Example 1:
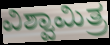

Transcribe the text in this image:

ವಿಶ್ವಾಮಿತ್ರ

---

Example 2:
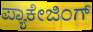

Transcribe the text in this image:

ಪ್ಯಾಕೇಜಿಂಗ್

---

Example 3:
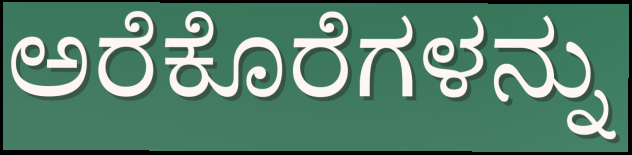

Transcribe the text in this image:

ಅರೆಕೊರೆಗಳನ್ನು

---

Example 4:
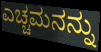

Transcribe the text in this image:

ಎಚ್ಚಮನನ್ನು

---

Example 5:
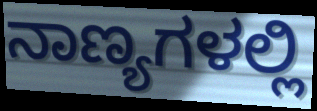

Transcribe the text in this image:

ನಾಣ್ಯಗಳಲ್ಲಿ